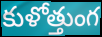
కుళోత్తుంగ